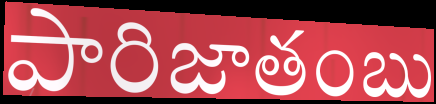
పారిజాతంబు